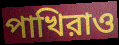
পাখিরাও